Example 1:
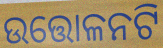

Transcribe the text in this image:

ଉତ୍ତୋଳନଟି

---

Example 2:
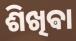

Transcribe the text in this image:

ଶିଖିଵା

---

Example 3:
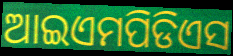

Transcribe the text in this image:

ଆଇଏମପିଡିଏସ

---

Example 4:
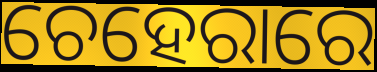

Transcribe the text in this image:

ଚେହେରାରେ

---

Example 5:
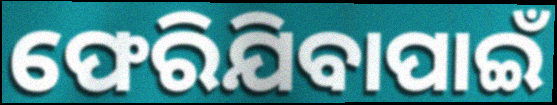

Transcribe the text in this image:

ଫେରିଯିବାପାଇଁ